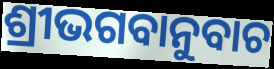
ଶ୍ରୀଭଗବାନୁବାଚ